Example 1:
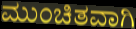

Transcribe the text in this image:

ಮುಂಚಿತವಾಗಿ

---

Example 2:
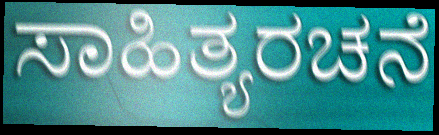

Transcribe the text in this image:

ಸಾಹಿತ್ಯರಚನೆ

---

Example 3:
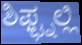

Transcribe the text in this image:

ಶಿಫ್ಟ್ನಲ್ಲಿ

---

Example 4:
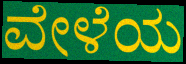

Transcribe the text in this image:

ವೇಳೆಯ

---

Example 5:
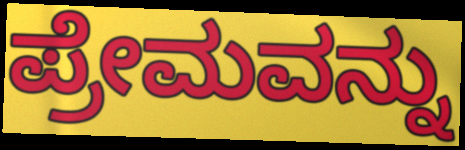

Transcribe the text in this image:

ಪ್ರೇಮವನ್ನು